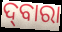
ଦ୍‌ବାରା